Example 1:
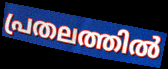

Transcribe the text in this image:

പ്രതലത്തിൽ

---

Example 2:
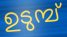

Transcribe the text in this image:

ഉടുമ്പ്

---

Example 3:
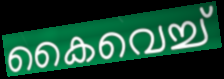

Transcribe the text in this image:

കൈവെച്ച്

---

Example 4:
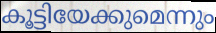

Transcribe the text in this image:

കൂട്ടിയേക്കുമെന്നും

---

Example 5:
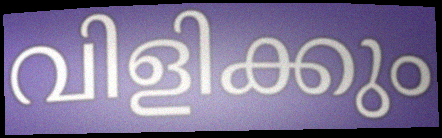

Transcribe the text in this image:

വിളിക്കും